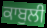
ਕਾਬੁਲੀ